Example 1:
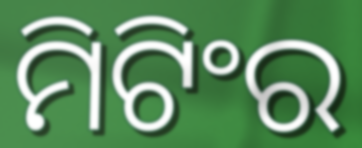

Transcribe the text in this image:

ମିଟିଂର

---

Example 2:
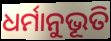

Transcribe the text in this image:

ଧର୍ମାନୁଭୂତି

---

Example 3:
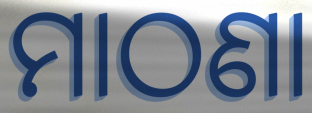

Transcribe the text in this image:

ମାଠଣା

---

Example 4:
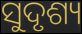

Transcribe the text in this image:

ସୁଦୃଶ୍ୟ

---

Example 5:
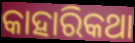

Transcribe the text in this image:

କାହାରିକଥା